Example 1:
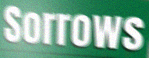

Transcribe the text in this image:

Sorrows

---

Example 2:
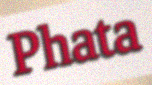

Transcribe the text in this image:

Phata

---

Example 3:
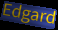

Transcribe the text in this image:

Edgard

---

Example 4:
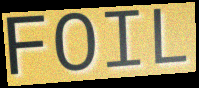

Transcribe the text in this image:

FOIL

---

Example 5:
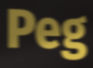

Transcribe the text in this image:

Peg